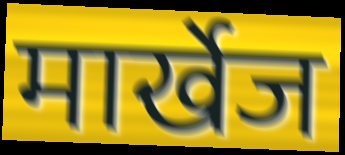
मार्खेज